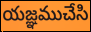
యజ్ఞముచేసి